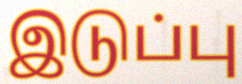
இடுப்பு